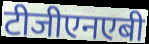
टीजीएनएबी